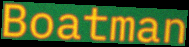
Boatman